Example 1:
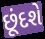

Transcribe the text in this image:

છૂંદશે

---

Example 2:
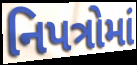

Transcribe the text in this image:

નિપત્રોમાં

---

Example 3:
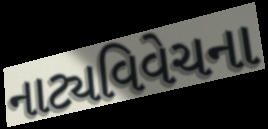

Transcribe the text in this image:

નાટ્યવિવેચના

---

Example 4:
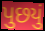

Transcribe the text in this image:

પુછયું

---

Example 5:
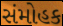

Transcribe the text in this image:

સંમોહક